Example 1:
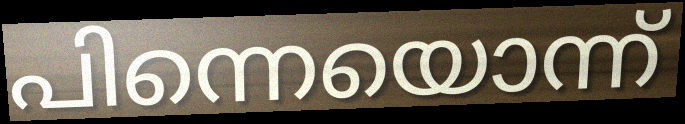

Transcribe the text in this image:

പിന്നെയൊന്ന്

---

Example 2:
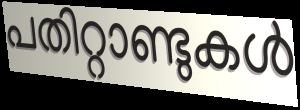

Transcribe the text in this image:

പതിറ്റാണ്ടുകൾ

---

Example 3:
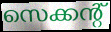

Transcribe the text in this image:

സെക്കന്റ്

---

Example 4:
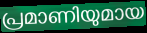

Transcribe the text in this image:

പ്രമാണിയുമായ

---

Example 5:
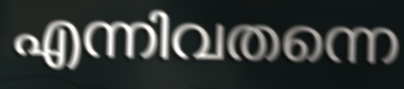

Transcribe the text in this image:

എന്നിവതന്നെ